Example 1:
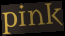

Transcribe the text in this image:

pink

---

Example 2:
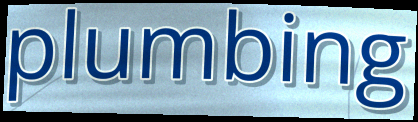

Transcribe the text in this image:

plumbing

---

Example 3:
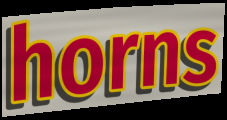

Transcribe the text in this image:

horns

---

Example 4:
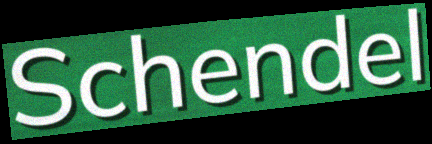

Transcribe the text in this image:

Schendel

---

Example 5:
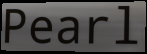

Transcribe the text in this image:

Pearl